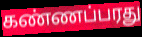
கண்ணப்பரது